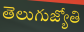
తెలుగుజ్యోతి